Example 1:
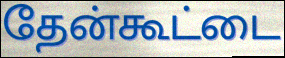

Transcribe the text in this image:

தேன்கூட்டை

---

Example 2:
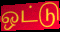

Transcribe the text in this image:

ஒட்டு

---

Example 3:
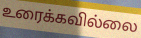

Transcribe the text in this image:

உரைக்கவில்லை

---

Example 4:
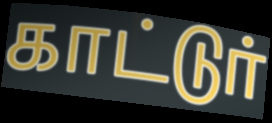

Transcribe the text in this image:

காட்டுர்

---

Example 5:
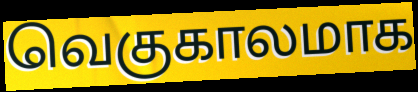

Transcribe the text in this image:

வெகுகாலமாக